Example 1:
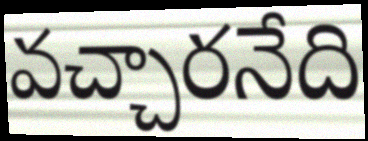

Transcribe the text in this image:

వచ్చారనేది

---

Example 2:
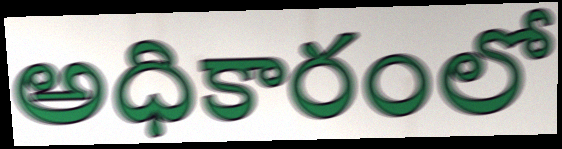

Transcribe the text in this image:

అధికారంలో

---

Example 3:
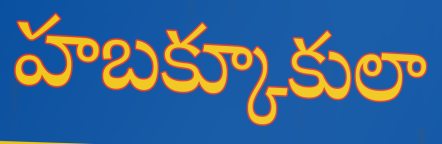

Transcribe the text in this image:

హబక్కూకులా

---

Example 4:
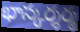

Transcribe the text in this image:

భాస్కర్శర్మ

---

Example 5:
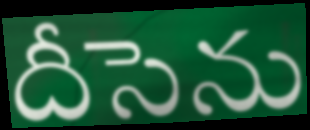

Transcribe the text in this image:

దీసెను